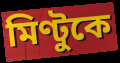
মিণ্টুকে